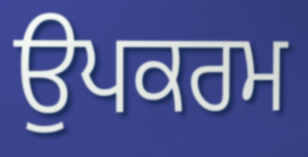
ਉਪਕਰਮ